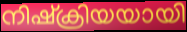
നിഷ്ക്രിയയായി